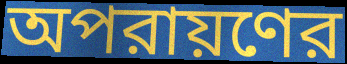
অপরায়ণের